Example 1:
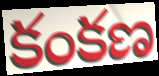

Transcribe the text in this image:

కంకణ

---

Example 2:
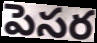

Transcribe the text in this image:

పెసర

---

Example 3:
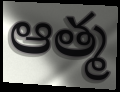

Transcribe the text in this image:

ఆత్మ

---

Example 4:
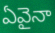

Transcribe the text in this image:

ఏవైనా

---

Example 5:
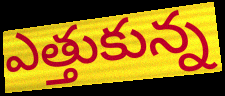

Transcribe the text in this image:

ఎత్తుకున్న